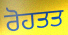
ਰੋਹਤਤ